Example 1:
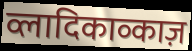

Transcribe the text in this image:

व्लादिकाव्काज़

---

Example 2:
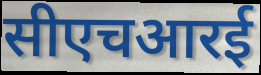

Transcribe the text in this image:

सीएचआरई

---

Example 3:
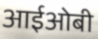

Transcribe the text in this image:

आईओबी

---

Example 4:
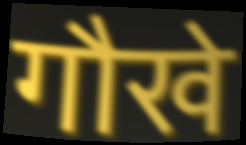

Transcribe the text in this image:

गौखे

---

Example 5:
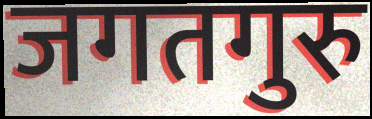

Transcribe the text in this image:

जगतगुरु